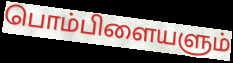
பொம்பிளையளும்